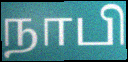
நாபி